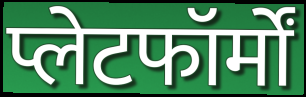
प्लेटफॉर्मों